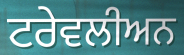
ਟਰੇਵਲੀਅਨ